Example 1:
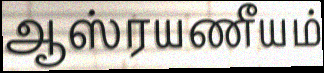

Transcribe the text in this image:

ஆஸ்ரயணீயம்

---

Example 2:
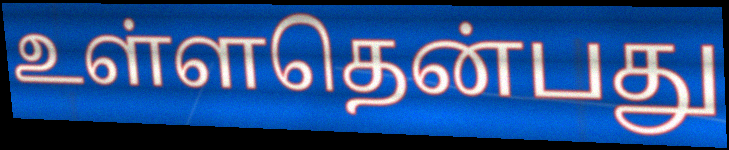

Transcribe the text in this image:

உள்ளதென்பது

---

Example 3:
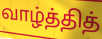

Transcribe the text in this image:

வாழ்த்தித்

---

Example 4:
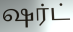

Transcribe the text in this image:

ஷர்ட்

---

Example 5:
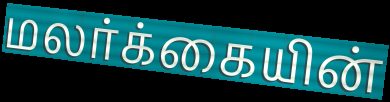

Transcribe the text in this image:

மலர்க்கையின்